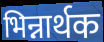
भिन्नार्थक